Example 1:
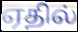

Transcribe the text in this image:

ஏதில்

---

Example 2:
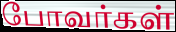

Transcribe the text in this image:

போவர்கள்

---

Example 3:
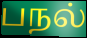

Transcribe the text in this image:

பநல்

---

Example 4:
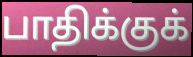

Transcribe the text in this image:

பாதிக்குக்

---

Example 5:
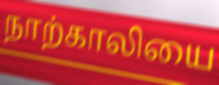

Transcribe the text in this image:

நாற்காலியை